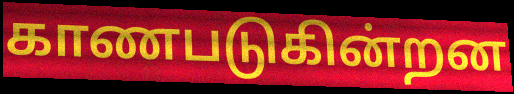
காணபடுகின்றன